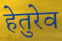
हेतुरेव